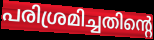
പരിശ്രമിച്ചതിന്റെ